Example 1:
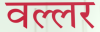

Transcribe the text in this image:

वल्लर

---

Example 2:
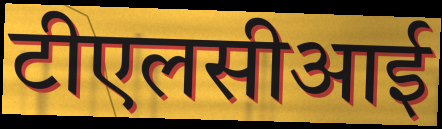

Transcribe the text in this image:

टीएलसीआई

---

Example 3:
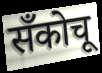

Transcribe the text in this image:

सँकोचू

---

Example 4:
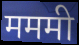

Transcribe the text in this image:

मममी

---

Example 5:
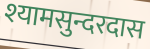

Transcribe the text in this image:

श्यामसुन्दरदास